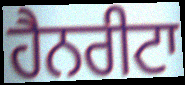
ਹੈਨਰੀਟਾ